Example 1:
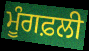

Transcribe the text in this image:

ਮੂੰਗਫ਼ਲੀ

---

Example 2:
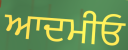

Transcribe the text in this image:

ਆਦਮੀਓ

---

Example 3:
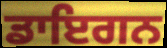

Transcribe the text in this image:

ਡਾਇਗਨ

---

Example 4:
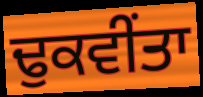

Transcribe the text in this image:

ਢੁਕਵੀਂਤਾ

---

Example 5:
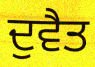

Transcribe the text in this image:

ਦੁਵੈਤ